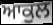
ਆਕੁਲ